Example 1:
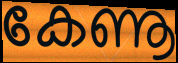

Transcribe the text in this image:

കേണൂ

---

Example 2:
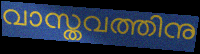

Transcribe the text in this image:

വാസ്തവത്തിനു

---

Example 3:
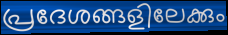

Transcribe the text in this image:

പ്രദേശങ്ങളിലേക്കും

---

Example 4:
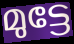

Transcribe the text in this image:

മുട്ടേ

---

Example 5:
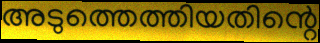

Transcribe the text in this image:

അടുത്തെത്തിയതിന്റെ